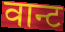
वान्ट